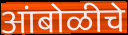
आंबोळीचे